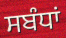
ਸਬੰਧਾਂ